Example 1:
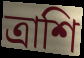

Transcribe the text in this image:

ত্রাশি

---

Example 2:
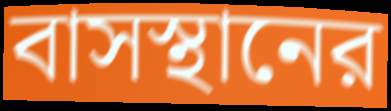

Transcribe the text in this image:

বাসস্থানের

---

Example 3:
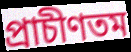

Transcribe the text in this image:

প্রাচীণতম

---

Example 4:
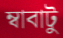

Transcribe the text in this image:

ম্বাবাটু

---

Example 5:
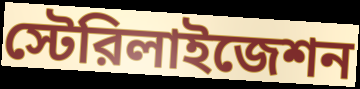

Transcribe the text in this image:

স্টেরিলাইজেশন